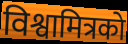
विश्वामित्रको